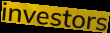
investors